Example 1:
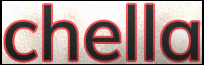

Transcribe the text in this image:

chella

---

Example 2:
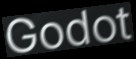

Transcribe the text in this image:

Godot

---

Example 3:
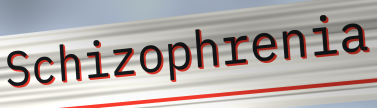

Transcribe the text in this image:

Schizophrenia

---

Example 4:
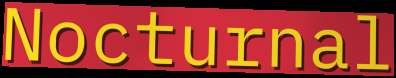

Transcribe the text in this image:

Nocturnal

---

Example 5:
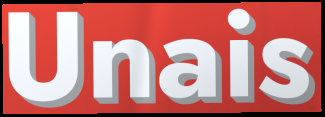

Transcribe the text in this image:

Unais